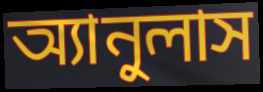
অ্যানুলাস